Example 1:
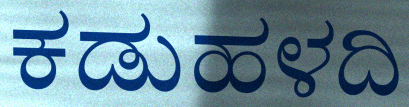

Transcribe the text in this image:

ಕಡುಹಳದಿ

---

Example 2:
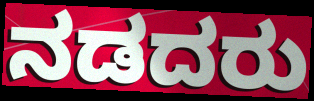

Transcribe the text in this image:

ನಡದರು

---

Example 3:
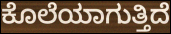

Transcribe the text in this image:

ಕೊಲೆಯಾಗುತ್ತಿದೆ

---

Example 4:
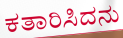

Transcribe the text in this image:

ಕತಾರಿಸಿದನು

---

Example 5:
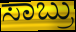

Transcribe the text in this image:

ಸಾಬ್ರು